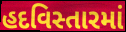
હદવિસ્તારમાં